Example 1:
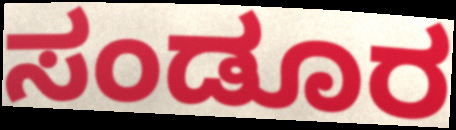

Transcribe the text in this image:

ಸಂಡೂರ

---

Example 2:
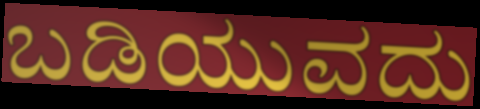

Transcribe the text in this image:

ಬಡಿಯುವದು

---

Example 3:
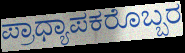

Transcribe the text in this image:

ಪ್ರಾಧ್ಯಾಪಕರೊಬ್ಬರ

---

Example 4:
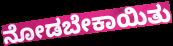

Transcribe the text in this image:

ನೋಡಬೇಕಾಯಿತು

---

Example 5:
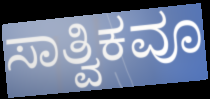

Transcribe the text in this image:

ಸಾತ್ವಿಕವೂ